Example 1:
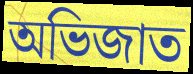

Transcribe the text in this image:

অভিজাত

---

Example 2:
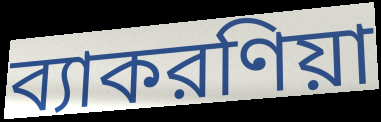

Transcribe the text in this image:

ব্যাকরণিয়া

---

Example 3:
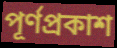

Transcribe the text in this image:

পূর্ণপ্রকাশ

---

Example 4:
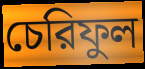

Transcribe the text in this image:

চেরিফুল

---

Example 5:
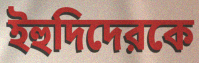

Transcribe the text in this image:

ইহুদিদেরকে